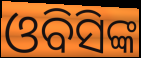
ଓବିସିଙ୍କ